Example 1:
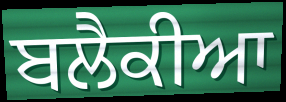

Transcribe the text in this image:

ਬਲੈਕੀਆ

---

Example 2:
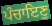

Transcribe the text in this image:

ਪੰਚਾਇਣੁ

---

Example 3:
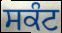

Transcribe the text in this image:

ਸਕੰਟ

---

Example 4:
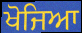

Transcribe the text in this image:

ਖੋਜਿਆ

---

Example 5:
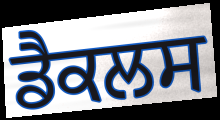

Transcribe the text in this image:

ਡੈਕਲਸ